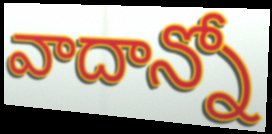
వాదాన్నో